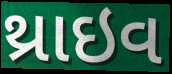
થ્રાઇવ